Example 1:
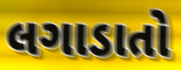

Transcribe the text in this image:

લગાડાતો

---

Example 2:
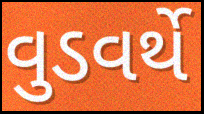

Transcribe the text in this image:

વુડવર્થે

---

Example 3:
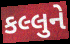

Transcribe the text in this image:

કલ્લુને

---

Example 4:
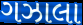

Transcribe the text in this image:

ગઝાલા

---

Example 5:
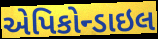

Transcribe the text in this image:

એપિકોન્ડાઇલ